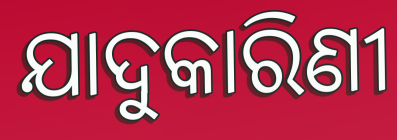
ଯାଦୁକାରିଣୀ